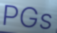
PGs